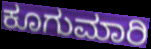
ಕೂಗುಮಾರಿ